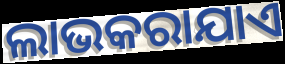
ଲାଭକରାଯାଏ